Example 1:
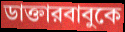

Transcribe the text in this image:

ডাক্তারবাবুকে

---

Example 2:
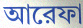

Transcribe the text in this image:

আরেফা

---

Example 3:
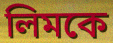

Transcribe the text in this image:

লিমকে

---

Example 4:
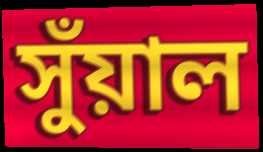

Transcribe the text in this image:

সুঁয়াল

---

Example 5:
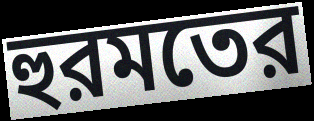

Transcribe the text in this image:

হুরমতের